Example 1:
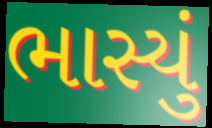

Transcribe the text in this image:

ભાસ્યું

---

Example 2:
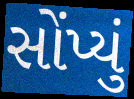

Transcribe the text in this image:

સોંપ્યું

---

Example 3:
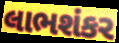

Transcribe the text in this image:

લાભશંકર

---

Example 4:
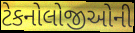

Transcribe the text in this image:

ટેકનોલોજીઓની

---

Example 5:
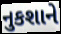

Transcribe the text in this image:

નુકશાને